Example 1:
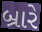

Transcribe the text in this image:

બ્રારે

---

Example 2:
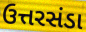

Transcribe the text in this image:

ઉત્તરસંડા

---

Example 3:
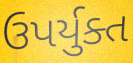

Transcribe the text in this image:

ઉપર્યુક્ત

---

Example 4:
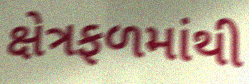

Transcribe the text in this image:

ક્ષેત્રફળમાંથી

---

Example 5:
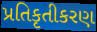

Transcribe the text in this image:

પ્રતિકૃતીકરણ